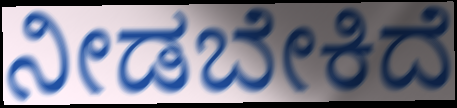
ನೀಡಬೇಕಿದೆ